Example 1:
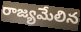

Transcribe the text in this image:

రాజ్యమేలిన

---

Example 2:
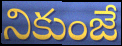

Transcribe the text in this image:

నికుంజే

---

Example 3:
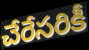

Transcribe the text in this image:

చేరేసరికీ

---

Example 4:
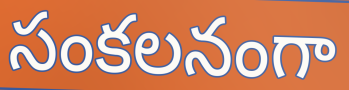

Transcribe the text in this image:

సంకలనంగా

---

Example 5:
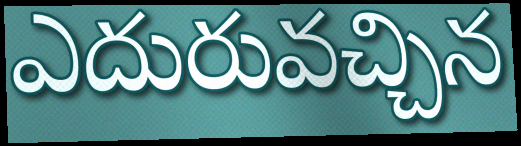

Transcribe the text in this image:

ఎదురువచ్చిన